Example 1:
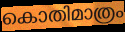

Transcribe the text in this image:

കൊതിമാത്രം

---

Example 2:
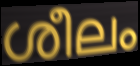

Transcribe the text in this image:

ശീലം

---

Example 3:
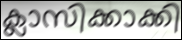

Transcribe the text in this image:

ക്ലാസിക്കാക്കി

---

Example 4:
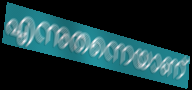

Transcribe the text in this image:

എന്നുതന്നെയാണ്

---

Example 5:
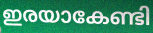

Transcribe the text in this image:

ഇരയാകേണ്ടി